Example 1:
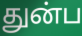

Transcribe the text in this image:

துன்ப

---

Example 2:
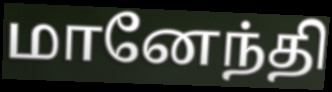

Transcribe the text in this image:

மானேந்தி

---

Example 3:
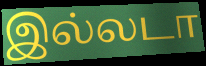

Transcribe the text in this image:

இல்லடா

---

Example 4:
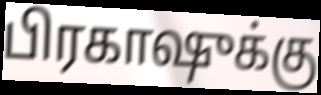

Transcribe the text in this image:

பிரகாஷுக்கு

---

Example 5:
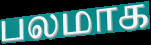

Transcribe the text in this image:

பலமாக